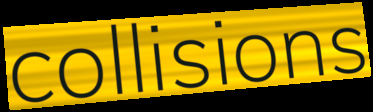
collisions